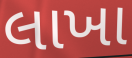
લાખા